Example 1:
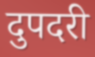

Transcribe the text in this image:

दुपदरी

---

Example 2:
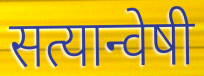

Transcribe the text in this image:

सत्यान्वेषी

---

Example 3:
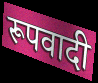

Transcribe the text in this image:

रूपवादी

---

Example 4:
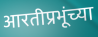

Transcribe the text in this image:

आरतीप्रभूंच्या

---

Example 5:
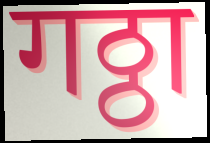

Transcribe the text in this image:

गठ्ठा